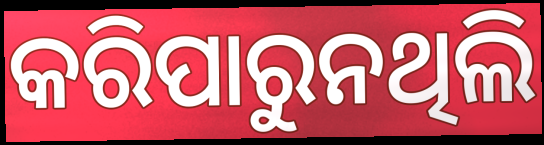
କରିପାରୁନଥିଲି